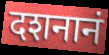
दशनानं